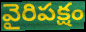
వైరిపక్షం